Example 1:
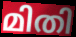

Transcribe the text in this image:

മിതി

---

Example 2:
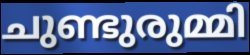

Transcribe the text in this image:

ചുണ്ടുരുമ്മി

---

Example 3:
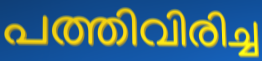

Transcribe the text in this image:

പത്തിവിരിച്ച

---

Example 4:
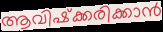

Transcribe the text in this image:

ആവിഷ്‌ക്കരിക്കാൻ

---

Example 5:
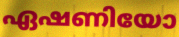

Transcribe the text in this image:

ഏഷണിയോ